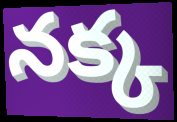
నక్క